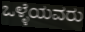
ಒಳ್ಳೆಯವರು